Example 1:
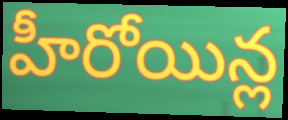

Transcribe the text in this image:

హీరోయిన్ల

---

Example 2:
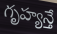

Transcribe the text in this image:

గృహ్యన్తే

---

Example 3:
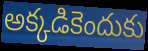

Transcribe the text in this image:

అక్కడికెందుకు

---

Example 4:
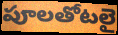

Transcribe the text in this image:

పూలతోటలై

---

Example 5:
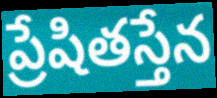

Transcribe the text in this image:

ప్రేషితస్తేన